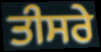
ਤੀਸਰੇ